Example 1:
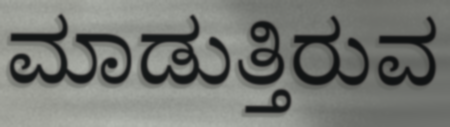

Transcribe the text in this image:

ಮಾಡುತ್ತಿರುವ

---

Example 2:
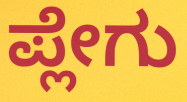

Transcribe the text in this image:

ಪ್ಲೇಗು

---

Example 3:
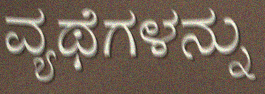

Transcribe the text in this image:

ವ್ಯಥೆಗಳನ್ನು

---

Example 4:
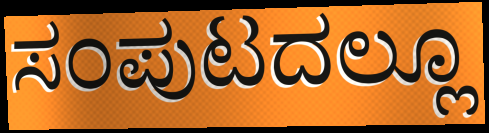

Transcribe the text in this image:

ಸಂಪುಟದಲ್ಲೂ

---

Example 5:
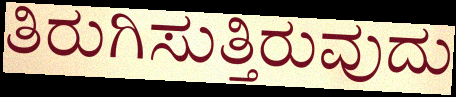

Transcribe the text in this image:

ತಿರುಗಿಸುತ್ತಿರುವುದು